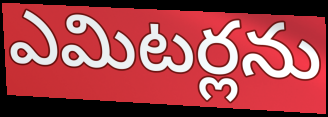
ఎమిటర్లను